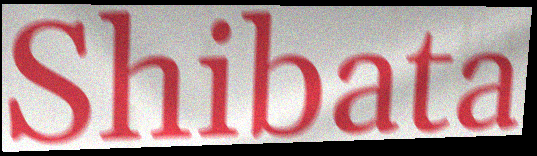
Shibata